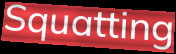
Squatting